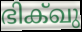
ഭിക്ഖു